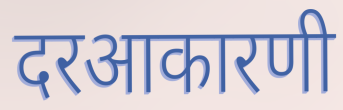
दरआकारणी